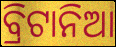
ବ୍ରିଟାନିଆ